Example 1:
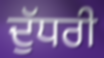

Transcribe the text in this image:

ਦੁੱਧਰੀ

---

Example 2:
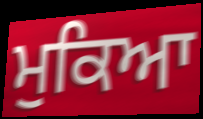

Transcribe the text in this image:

ਮੁਕਿਆ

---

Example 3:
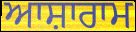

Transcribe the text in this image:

ਆਸ਼ਾਰਾਮ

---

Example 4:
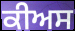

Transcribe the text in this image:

ਕੀਅਸ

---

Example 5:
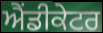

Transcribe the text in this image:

ਐਂਡੀਕੇਟਰ